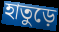
হাতুড়ে